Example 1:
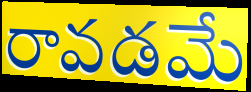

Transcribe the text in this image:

రావడమే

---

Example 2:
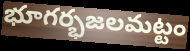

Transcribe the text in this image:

భూగర్భజలమట్టం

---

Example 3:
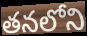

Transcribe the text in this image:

తనలోని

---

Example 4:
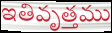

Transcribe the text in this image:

ఇతివృత్తము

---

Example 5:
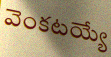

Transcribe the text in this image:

వెంకటయ్యే